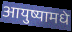
आयुष्यामधे